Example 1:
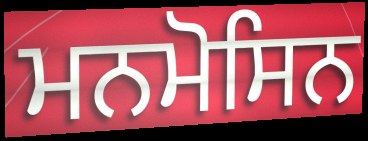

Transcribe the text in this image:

ਮਨਮੋਸਿਨ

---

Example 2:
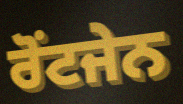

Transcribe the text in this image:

ਰੋਂਟਜੇਨ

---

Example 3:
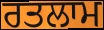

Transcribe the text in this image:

ਰਤਲਾਮ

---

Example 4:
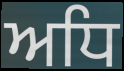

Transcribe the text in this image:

ਅਧਿ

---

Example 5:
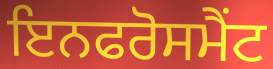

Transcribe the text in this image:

ਇਨਫਰੋਸਮੈਂਟ